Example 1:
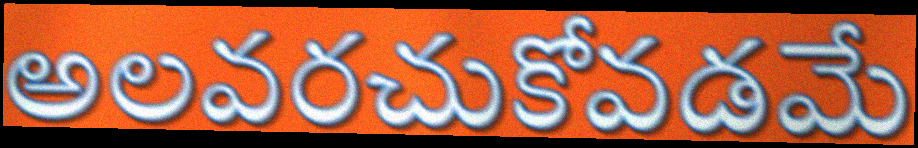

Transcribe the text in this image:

అలవరచుకోవడమే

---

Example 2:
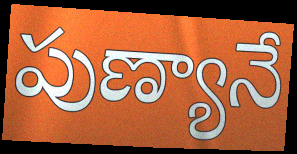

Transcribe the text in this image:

పుణ్యానే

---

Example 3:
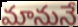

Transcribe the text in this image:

మానునే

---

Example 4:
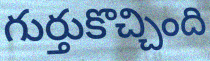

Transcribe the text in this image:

గుర్తుకొచ్చింది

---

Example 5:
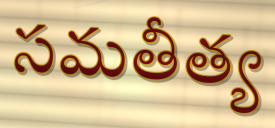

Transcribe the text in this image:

సమతీత్య